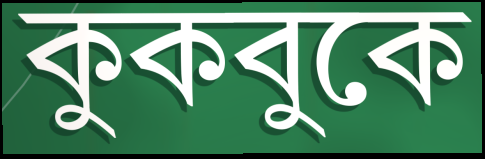
কুকবুকে